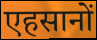
एहसानों